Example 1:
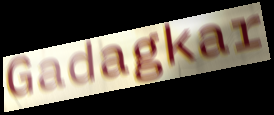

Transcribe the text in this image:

Gadagkar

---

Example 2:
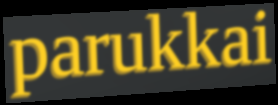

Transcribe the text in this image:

parukkai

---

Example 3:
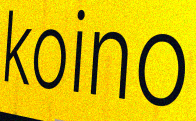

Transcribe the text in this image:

koino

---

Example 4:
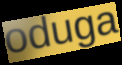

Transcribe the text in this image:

oduga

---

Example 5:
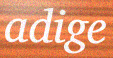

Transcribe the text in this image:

adige